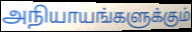
அநியாயங்களுக்கும்